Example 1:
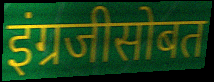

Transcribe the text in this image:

इंग्रजीसोबत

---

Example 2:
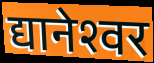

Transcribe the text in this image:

द्यानेश्वर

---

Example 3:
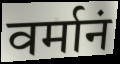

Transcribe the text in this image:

वर्मानं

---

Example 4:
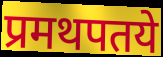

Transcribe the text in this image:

प्रमथपतये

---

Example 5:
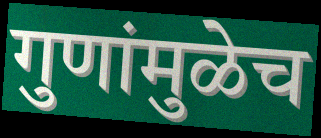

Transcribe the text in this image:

गुणांमुळेच